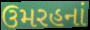
ઉમરહનાં